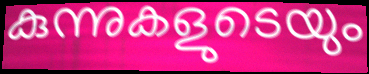
കുന്നുകളുടെയും